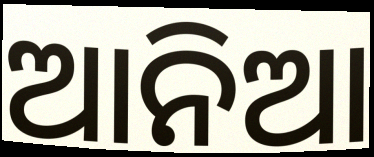
ଆନିଆ